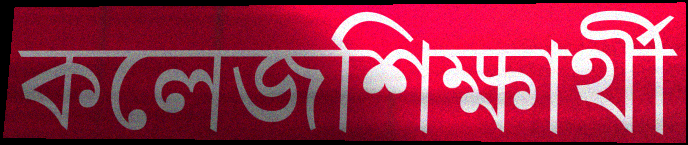
কলেজশিক্ষার্থী